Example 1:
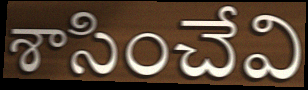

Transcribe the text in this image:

శాసించేవి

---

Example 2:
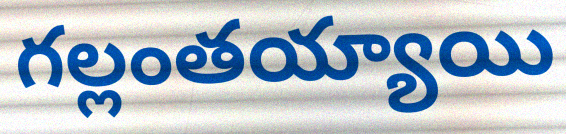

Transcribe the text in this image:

గల్లంతయ్యాయి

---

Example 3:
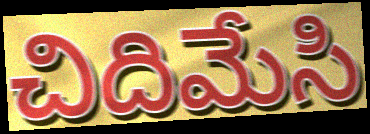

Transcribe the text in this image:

చిదిమేసి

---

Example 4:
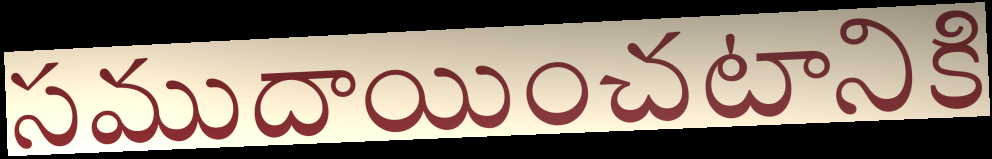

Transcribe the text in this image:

సముదాయించటానికి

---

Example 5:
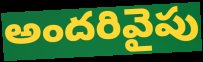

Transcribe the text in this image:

అందరివైపు